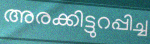
അരക്കിട്ടുറപ്പിച്ച